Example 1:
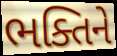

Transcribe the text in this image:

ભક્તિને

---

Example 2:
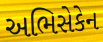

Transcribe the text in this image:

અભિસેકેન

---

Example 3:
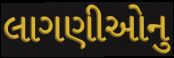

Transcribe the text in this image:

લાગણીઓનુ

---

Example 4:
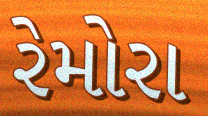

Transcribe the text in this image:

રેમોરા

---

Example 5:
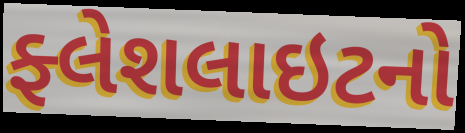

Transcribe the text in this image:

ફ્લેશલાઇટનો